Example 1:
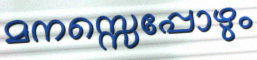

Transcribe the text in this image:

മനസ്സെപ്പോഴും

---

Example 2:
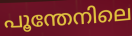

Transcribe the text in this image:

പൂന്തേനിലെ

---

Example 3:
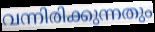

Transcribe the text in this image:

വന്നിരിക്കുന്നതും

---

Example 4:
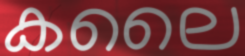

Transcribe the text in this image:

കലൈ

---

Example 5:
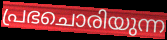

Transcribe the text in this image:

പ്രഭചൊരിയുന്ന